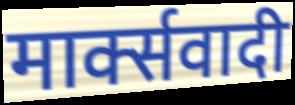
मार्क्सवादी